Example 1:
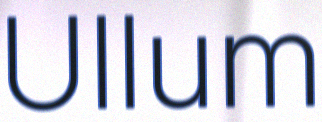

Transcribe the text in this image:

Ullum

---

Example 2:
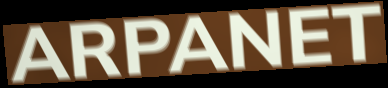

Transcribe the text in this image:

ARPANET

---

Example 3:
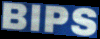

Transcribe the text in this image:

BIPS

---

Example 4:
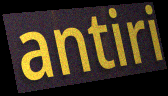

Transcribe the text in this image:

antiri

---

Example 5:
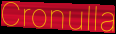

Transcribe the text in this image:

Cronulla